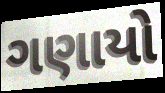
ગણાયો